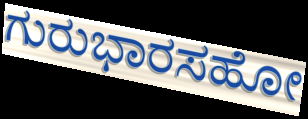
ಗುರುಭಾರಸಹೋ